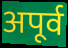
अपूर्व